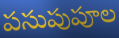
పసుపుపూల